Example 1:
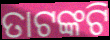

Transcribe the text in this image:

ତାଟଙ୍କଟି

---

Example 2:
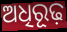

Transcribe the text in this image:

ଅଧିରୂଢ଼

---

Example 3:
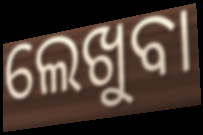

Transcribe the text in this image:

ଲେଖୁବା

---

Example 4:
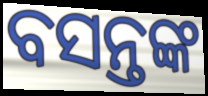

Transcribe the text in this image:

ବସନ୍ତଙ୍କ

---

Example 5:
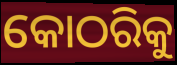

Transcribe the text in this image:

କୋଠରିକୁ